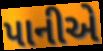
પાનીએ